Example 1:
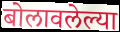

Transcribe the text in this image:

बोलावलेल्या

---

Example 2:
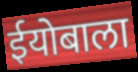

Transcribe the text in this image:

ईयोबाला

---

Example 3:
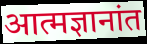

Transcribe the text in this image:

आत्मज्ञानांत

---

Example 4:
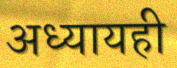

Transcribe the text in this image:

अध्यायही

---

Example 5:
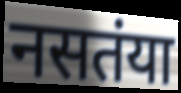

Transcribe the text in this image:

नसतंया